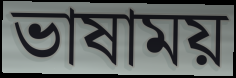
ভাষাময়